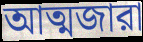
আত্মজারা